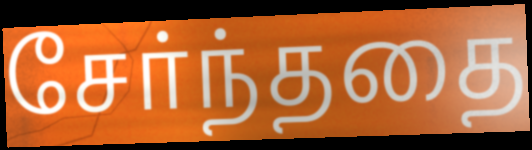
சேர்ந்ததை